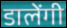
डालेंगी